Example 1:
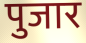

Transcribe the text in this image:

पुजार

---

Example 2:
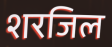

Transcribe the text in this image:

शरजिल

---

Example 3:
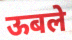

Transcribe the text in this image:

ऊबले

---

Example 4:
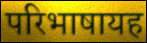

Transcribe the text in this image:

परिभाषायह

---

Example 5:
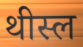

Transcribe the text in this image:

थीस्ल